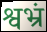
श्वभ्रं